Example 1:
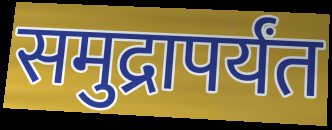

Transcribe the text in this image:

समुद्रापर्यंत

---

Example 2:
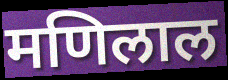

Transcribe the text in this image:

मणिलाल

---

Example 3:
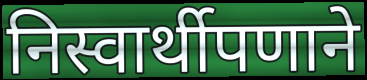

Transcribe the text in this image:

निस्वार्थीपणाने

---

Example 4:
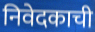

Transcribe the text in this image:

निवेदकाची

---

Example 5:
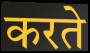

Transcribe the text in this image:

करते